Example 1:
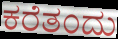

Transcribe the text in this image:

ಕರೆತಂದು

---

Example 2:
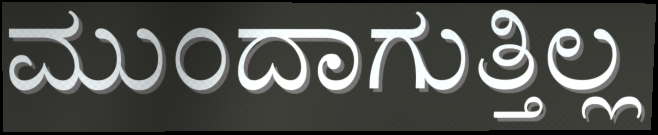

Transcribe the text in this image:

ಮುಂದಾಗುತ್ತಿಲ್ಲ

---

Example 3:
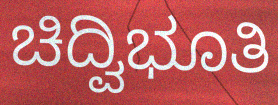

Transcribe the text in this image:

ಚಿದ್ವಿಭೂತಿ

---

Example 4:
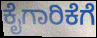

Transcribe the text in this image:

ಕೈಗಾರಿಕೆಗೆ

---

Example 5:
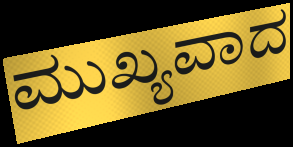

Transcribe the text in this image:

ಮುಖ್ಯವಾದ